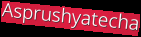
Asprushyatecha